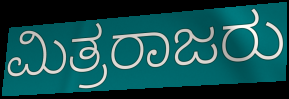
ಮಿತ್ರರಾಜರು